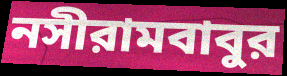
নসীরামবাবুর